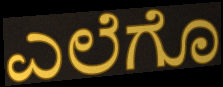
ಎಲೆಗೊ